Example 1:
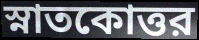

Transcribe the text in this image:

স্নাতকোত্তর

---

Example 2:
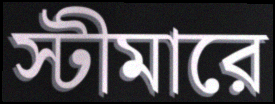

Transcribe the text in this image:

স্টীমারে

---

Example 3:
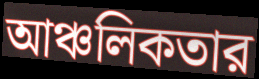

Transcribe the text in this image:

আঞ্চলিকতার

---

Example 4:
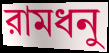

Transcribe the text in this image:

রামধনু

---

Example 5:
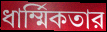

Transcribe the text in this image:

ধার্ম্মিকতার